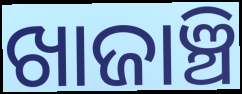
ଖାଜାଞ୍ଚି